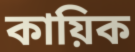
কায়িক